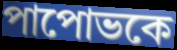
পাপোভকে